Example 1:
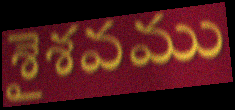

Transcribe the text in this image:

శైశవము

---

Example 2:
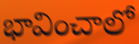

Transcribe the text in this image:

భావించాలో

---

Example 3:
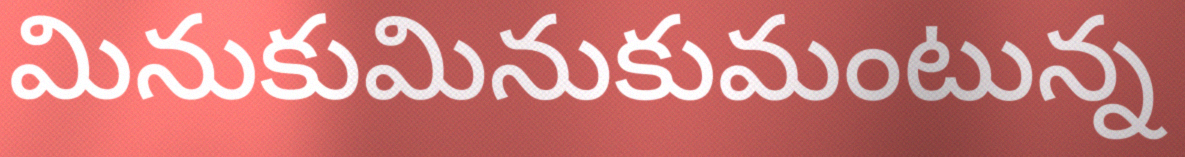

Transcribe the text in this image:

మినుకుమినుకుమంటున్న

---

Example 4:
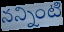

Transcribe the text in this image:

నన్నింటి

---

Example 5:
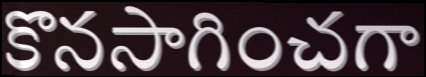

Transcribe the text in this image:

కొనసాగించగా